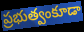
ప్రభుత్వంకూడా